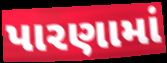
પારણામાં